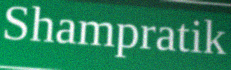
Shampratik